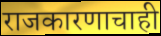
राजकारणाचाही